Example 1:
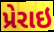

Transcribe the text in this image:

પ્રેરાઇ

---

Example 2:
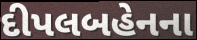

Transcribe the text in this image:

દીપલબહેનના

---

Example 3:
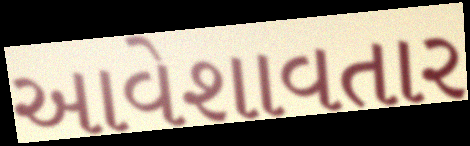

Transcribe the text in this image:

આવેશાવતાર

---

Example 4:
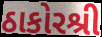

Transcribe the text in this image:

ઠાકોરશ્રી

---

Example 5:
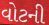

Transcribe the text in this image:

વોટની